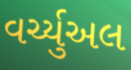
વર્ચ્યુઅલ